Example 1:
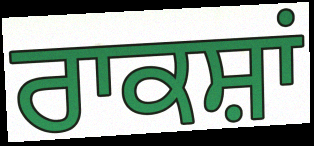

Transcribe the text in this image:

ਰਾਕਸ਼ਾਂ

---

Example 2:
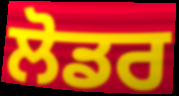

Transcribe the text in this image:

ਲੋਡਰ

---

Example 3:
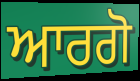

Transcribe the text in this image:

ਆਰਗੋ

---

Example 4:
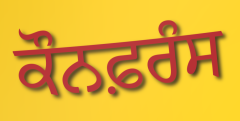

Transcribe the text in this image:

ਕੌਨਫ਼ਰੰਸ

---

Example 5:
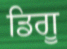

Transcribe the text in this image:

ਡਿਗੂ